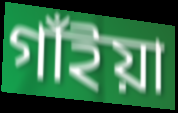
গাঁইয়া